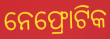
ନେଫ୍ରୋଟିକ